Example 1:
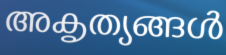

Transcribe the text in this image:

അകൃത്യങ്ങൾ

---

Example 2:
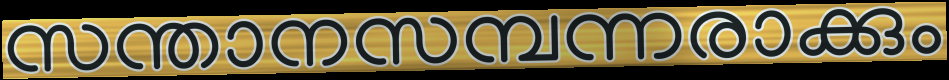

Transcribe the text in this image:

സന്താനസമ്പന്നരാക്കും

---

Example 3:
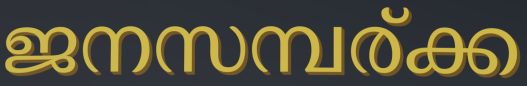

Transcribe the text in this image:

ജനസമ്പര്ക്ക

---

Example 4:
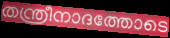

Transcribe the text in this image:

തന്ത്രീനാദത്തോടെ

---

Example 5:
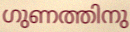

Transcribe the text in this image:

ഗുണത്തിനു